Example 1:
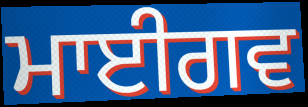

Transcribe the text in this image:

ਮਾਈਗਵ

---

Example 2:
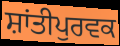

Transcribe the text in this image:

ਸ਼ਾਂਤੀਪੁਰਵਕ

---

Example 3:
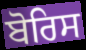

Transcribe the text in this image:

ਬੋਰਿਸ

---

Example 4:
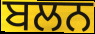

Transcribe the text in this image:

ਬਲਨ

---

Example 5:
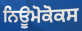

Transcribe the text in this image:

ਨਿਊਮੋਕੋਕਸ